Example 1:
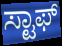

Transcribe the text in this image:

ಸ್ಟಾಫ್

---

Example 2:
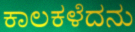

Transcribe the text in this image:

ಕಾಲಕಳೆದನು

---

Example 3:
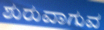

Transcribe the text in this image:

ಶುರುವಾಗುವ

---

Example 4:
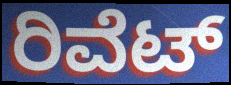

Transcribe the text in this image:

ರಿವೆಟ್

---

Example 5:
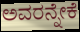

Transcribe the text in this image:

ಅವರನ್ನೇಕೆ